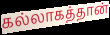
கல்லாகத்தான்